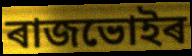
ৰাজভোইৰ